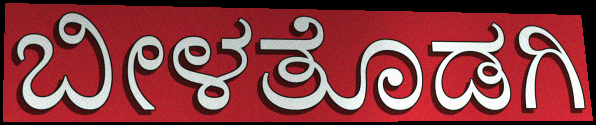
ಬೀಳತೊಡಗಿ